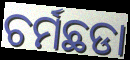
ଚର୍ମଛଡା